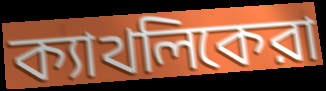
ক্যাথলিকেরা